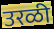
उरळी